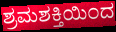
ಶ್ರಮಶಕ್ತಿಯಿಂದ